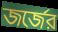
জর্জের